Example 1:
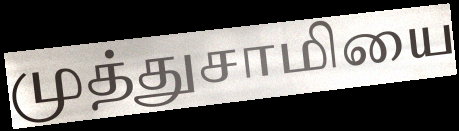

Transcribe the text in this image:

முத்துசாமியை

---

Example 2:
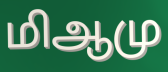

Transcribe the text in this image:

மிஆமு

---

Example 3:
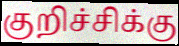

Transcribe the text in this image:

குறிச்சிக்கு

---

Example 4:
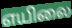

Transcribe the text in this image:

எயிலை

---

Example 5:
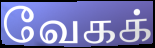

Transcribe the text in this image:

வேகக்